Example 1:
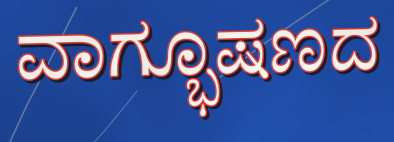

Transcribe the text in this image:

ವಾಗ್ಭೂಷಣದ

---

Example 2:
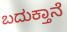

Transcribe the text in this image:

ಬದುಕ್ತಾನೆ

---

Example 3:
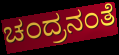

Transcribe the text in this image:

ಚಂದ್ರನಂತೆ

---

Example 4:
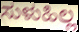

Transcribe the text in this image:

ಸುಳುಹಿಲ್ಲ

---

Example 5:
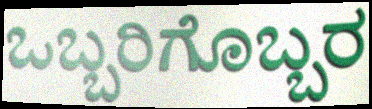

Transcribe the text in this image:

ಒಬ್ಬರಿಗೊಬ್ಬರ